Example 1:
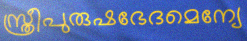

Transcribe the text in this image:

സ്ത്രീപുരുഷഭേദമെന്യേ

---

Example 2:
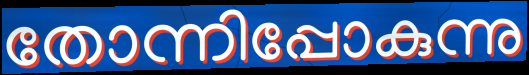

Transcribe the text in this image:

തോന്നിപ്പോകുന്നു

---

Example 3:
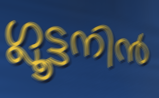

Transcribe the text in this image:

ഗ്ലൂട്ടനിൻ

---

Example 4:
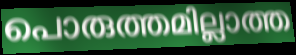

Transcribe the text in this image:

പൊരുത്തമില്ലാത്ത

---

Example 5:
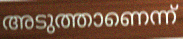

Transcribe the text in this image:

അടുത്താണെന്ന്